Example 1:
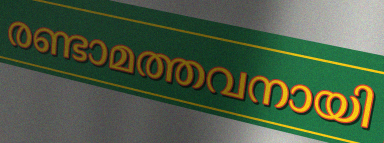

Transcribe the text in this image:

രണ്ടാമത്തവനായി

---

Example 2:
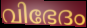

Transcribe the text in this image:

വിഭേദം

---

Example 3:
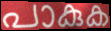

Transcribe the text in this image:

പാകുക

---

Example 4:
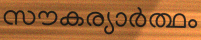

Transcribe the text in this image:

സൗകര്യാർത്ഥം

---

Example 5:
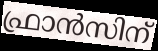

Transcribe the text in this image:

ഫ്രാൻസിന്